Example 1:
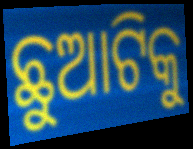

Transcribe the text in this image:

ଛୁଆଟିକୁ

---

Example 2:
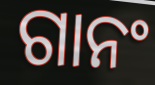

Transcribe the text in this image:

ଗାନଂ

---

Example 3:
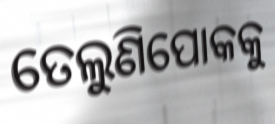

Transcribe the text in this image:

ତେଲୁଣିପୋକକୁ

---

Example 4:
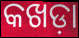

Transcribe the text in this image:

କଖଡ଼ା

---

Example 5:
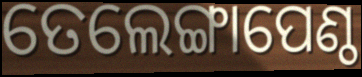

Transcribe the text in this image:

ତେଲେଙ୍ଗାପେଣ୍ଠ